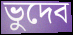
ভুদেব